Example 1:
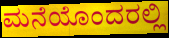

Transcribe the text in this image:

ಮನೆಯೊಂದರಲ್ಲಿ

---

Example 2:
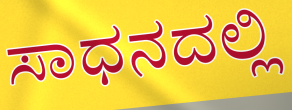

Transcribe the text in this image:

ಸಾಧನದಲ್ಲಿ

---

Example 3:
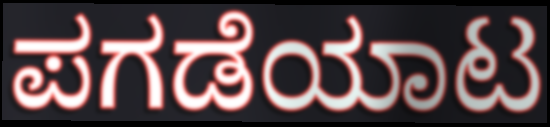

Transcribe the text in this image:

ಪಗಡೆಯಾಟ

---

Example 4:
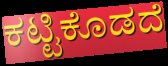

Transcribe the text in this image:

ಕಟ್ಟಿಕೊಡದೆ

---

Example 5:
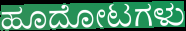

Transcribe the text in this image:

ಹೂದೋಟಗಳು